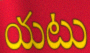
యటు